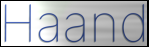
Haand